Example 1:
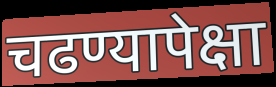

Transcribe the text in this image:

चढण्यापेक्षा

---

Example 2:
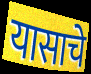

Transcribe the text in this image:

यासाचे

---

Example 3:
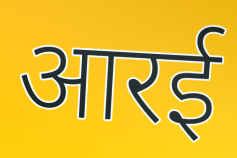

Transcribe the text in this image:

आरई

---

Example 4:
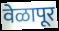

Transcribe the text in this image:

वेळापूर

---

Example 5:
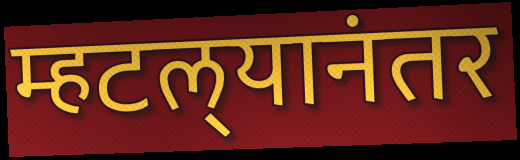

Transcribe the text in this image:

म्हटल्यानंतर